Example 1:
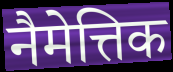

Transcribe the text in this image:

नैमेत्तिक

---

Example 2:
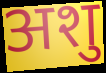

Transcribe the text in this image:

अशु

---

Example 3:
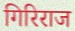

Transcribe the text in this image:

गिरिराज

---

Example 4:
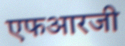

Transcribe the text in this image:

एफआरजी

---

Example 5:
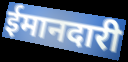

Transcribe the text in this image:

ईमानदारी